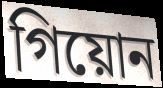
গিয়োন